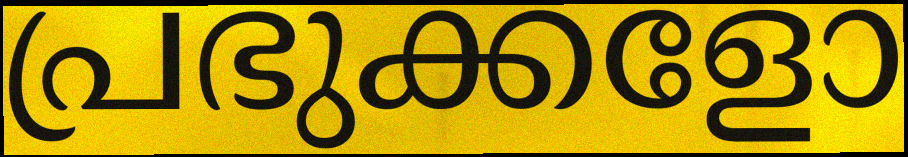
പ്രഭുക്കളോ